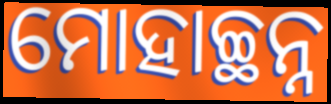
ମୋହାଚ୍ଛନ୍ନ